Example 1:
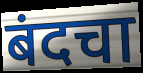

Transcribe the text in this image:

बंदचा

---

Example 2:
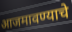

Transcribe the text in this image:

आजमावण्याचे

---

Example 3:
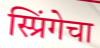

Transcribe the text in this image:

स्प्रिंगेचा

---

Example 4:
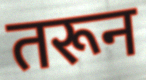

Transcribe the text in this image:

तरून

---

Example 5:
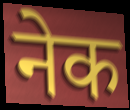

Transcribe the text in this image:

नेक